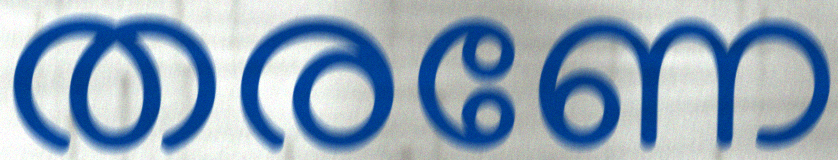
തരണേ